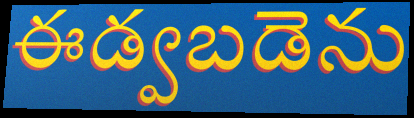
ఈడ్వబడెను